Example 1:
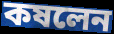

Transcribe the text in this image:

কষলেন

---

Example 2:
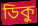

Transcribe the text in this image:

ডিকু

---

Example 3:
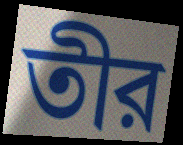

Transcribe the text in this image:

তীর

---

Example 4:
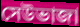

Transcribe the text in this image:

সেউভাজা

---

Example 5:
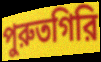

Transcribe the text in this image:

পুরুতগিরি